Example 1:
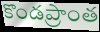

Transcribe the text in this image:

కొండప్రాంత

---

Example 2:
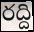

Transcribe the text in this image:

రద్ది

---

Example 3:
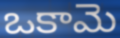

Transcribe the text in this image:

ఒకామె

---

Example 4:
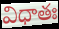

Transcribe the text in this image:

విధాతః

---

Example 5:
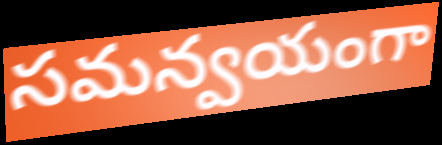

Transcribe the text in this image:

సమన్వయంగా